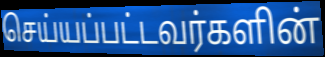
செய்யப்பட்டவர்களின்